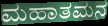
ಮಹಾತಮನ